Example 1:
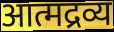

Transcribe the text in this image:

आत्मद्रव्य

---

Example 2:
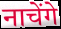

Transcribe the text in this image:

नाचेंगे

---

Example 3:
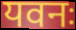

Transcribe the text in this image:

यवनः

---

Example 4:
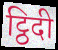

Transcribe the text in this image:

ट्ठिदी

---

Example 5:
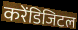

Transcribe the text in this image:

करेंडिजिटल